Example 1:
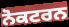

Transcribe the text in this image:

ਨੋਕਟਰਨ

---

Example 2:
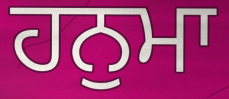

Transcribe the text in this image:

ਹਨੁਮਾ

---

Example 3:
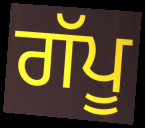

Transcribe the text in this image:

ਗੱਪੂ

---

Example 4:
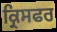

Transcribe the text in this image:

ਕ੍ਰਿਸਫਰ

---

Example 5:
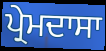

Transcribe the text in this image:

ਪ੍ਰੇਮਦਾਸਾ